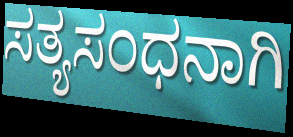
ಸತ್ಯಸಂಧನಾಗಿ